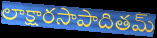
లాక్షారసాపాదితమ్